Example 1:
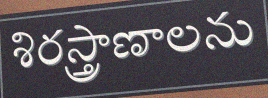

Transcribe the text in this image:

శిరస్త్రాణాలను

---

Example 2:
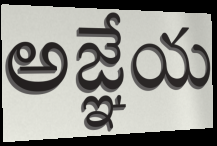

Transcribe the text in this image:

అజ్ఞేయ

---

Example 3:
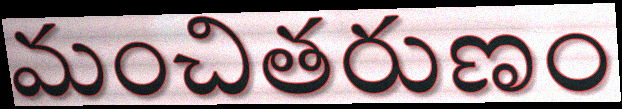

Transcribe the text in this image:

మంచితరుణం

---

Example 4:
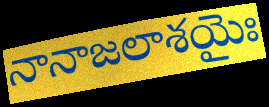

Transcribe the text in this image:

నానాజలాశయైః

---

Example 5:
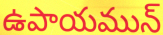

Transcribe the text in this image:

ఉపాయమున్